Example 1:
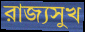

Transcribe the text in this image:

রাজ্যসুখ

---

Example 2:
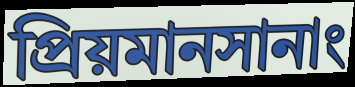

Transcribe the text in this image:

প্রিয়মানসানাং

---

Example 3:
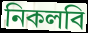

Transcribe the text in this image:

নিকলবি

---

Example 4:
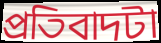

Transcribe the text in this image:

প্রতিবাদটা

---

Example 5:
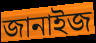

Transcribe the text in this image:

জানাইজ